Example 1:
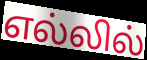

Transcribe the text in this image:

எல்லில்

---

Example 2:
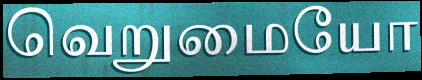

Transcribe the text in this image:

வெறுமையோ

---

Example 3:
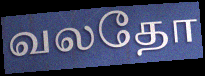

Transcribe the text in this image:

வலதோ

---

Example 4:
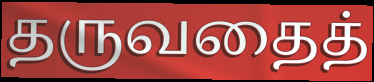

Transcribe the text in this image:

தருவதைத்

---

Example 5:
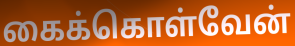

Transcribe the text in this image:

கைக்கொள்வேன்